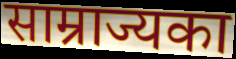
साम्राज्यका